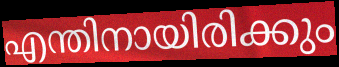
എന്തിനായിരിക്കും